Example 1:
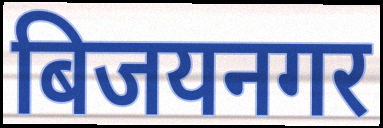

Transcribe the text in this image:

बिजयनगर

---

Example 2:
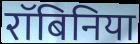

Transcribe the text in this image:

रॉबिनिया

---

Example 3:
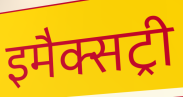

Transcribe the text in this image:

इमैक्सट्री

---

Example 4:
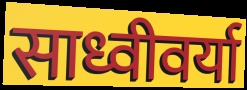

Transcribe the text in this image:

साध्वीवर्या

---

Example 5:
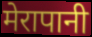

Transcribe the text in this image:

मेरापानी